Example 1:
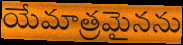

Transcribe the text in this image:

యేమాత్రమైనను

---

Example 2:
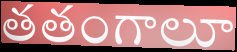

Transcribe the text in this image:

తతంగాలూ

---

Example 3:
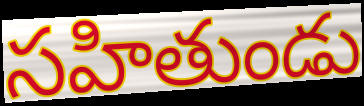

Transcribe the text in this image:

సహితుండు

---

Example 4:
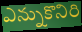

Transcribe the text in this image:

ఎన్నుకొనిరి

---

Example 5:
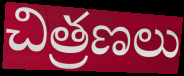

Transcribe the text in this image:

చిత్రణలు